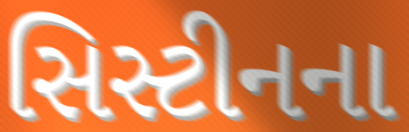
સિસ્ટીનના